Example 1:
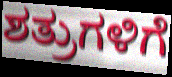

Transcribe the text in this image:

ಶತ್ರುಗಳಿಗೆ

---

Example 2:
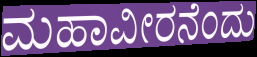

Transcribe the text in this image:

ಮಹಾವೀರನೆಂದು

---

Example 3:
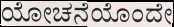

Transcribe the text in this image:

ಯೋಚನೆಯೊಂದೇ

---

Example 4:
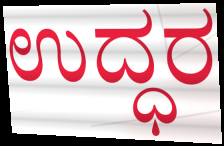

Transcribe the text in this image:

ಉದ್ಧರ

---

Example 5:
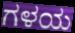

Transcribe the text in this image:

ಗಳಯ